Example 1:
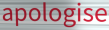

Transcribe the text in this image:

apologise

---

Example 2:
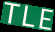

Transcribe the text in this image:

TLE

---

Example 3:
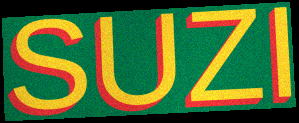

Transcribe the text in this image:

SUZI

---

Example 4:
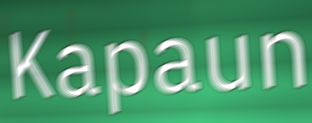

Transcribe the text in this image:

Kapaun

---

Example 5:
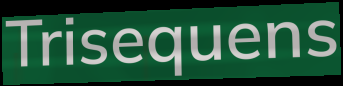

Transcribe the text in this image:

Trisequens